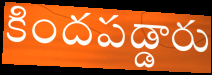
కిందపడ్డారు